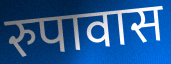
रुपावास